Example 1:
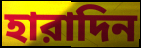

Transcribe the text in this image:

হারাদিন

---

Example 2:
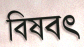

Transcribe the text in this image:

বিষবৎ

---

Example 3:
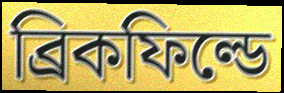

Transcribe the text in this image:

ব্রিকফিল্ডে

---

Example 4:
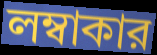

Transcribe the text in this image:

লম্বাকার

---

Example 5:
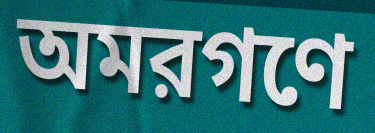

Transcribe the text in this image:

অমরগণে